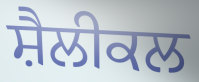
ਸ਼ੈਲੀਕਲ